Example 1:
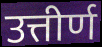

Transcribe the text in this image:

उत्तीर्ण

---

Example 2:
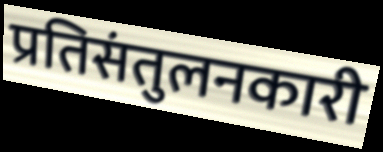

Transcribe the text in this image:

प्रतिसंतुलनकारी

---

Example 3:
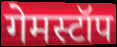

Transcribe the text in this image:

गेमस्टॉप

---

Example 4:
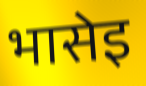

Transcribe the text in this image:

भासेइ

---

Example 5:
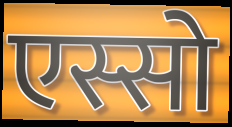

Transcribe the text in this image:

एस्सो